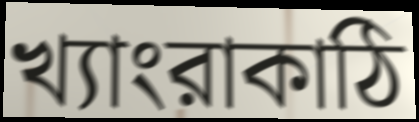
খ্যাংরাকাঠি